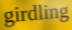
girdling